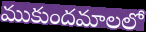
ముకుందమాలలో